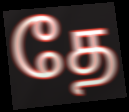
தே